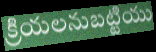
క్రియలనుబట్టియు